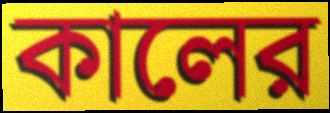
কালের